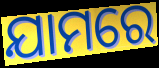
ଯାମରେ